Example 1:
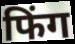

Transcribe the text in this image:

फिंग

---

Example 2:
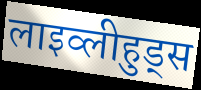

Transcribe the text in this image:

लाइव्लीहुड्स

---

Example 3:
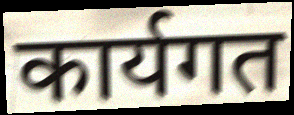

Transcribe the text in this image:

कार्यगत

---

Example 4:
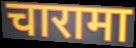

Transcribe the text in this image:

चारामा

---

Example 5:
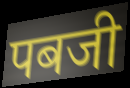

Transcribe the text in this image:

पबजी